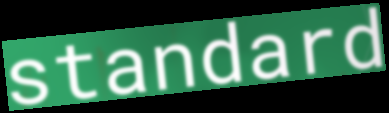
standard